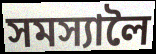
সমস্যালৈ